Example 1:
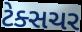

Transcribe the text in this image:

ટેક્સચર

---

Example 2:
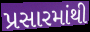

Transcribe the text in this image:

પ્રસારમાંથી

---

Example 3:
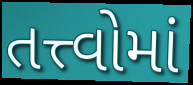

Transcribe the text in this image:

તત્ત્વોમાં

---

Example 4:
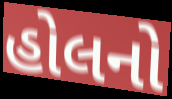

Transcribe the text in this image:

હોલનો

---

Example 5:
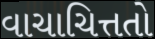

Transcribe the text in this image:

વાચાચિત્તતો